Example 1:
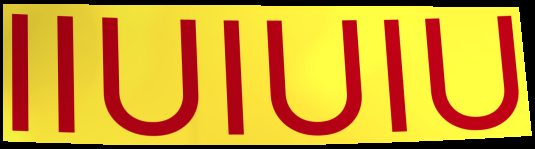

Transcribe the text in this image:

IIUIUIU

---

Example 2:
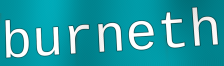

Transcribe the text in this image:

burneth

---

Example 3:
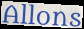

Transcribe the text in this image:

Allons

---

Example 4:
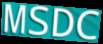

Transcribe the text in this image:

MSDC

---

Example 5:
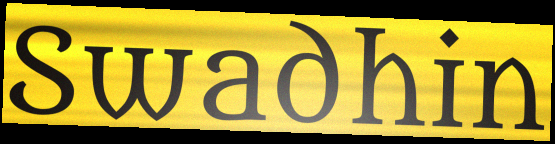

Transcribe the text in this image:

Swadhin